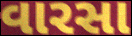
વારસા